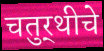
चतुर्थीचे